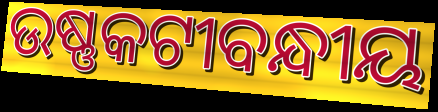
ଉଷ୍ଣକଟୀବନ୍ଧୀୟ